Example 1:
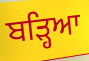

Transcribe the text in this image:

ਬੜ੍ਹਿਆ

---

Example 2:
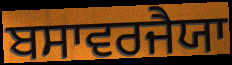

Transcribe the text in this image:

ਬਸਾਵਰਜੈਯਾ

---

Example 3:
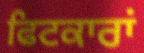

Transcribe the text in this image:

ਫਿਟਕਾਰਾਂ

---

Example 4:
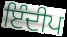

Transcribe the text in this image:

ਇੰਦੀਪ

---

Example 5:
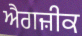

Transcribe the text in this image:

ਐਗਜ਼ੀਕ